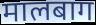
मालबाग